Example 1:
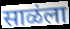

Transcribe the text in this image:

साळंला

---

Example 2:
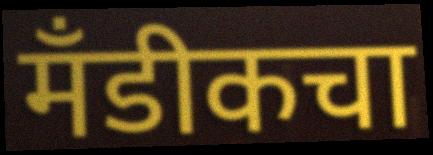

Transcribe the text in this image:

मँडीकचा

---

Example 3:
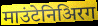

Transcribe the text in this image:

माउंटेनिअिरग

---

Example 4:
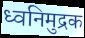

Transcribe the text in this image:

ध्वनिमुद्रक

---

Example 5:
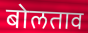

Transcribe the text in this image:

बोलताव